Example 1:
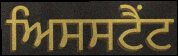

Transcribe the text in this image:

ਅਿਸਸਟੈਂਟ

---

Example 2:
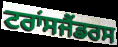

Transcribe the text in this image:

ਟਰਾਂਸਜੈਂਡਰਸ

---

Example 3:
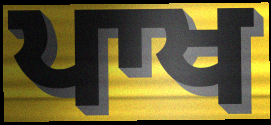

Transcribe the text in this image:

ਪਾਖ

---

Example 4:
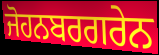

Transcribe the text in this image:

ਜੋਹਨਬਰਗਰੇਨ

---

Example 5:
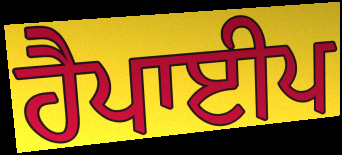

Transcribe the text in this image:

ਹੈਪਾਈਪ